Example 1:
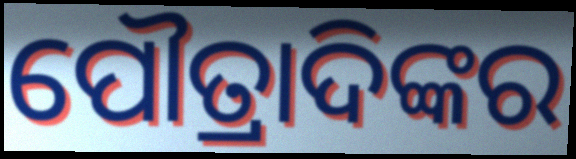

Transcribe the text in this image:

ପୌତ୍ରାଦିଙ୍କର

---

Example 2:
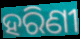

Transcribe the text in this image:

ହରିଣୀ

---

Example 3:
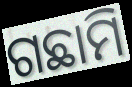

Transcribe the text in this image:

ଗଛାମି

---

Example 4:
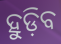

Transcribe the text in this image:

ହୁଡ଼ିବ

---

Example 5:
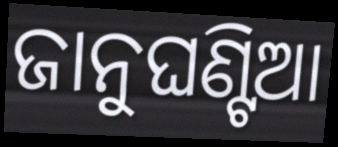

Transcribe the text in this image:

ଜାନୁଘଣ୍ଟିଆ